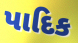
પાદિક